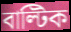
বাল্টিক